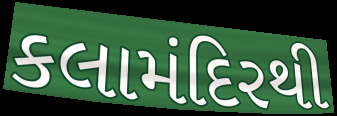
કલામંદિરથી